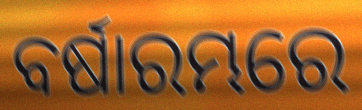
ବର୍ଷାରମ୍ଭରେ